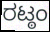
ರಟ್ಠಂ